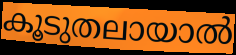
കൂടുതലായാൽ